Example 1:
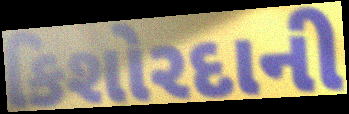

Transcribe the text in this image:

કિશોરદાની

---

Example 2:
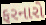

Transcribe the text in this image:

ફરનારો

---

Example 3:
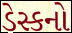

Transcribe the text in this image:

ડેસ્કનો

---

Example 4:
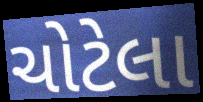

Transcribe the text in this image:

ચોટેલા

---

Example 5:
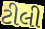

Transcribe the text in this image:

ટીલી